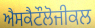
ਐਸਕੈਟੌਲੋਜੀਕਲ